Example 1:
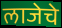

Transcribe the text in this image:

लाजेचे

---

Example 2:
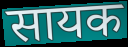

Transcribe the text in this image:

सायक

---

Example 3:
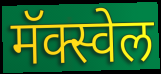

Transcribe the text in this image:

मॅक्स्वेल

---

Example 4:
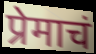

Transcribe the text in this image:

प्रेमाचं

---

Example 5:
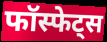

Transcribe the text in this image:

फॉस्फेट्स